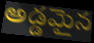
అడ్డమైన